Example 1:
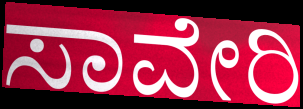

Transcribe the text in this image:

ಸಾವೇರಿ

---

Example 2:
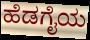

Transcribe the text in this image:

ಹೆಡಗೈಯ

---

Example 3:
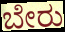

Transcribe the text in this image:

ಬೇರು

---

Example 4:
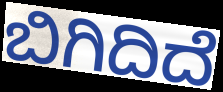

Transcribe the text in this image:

ಬಿಗಿದಿದೆ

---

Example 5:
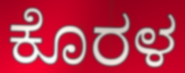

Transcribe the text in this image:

ಕೊರಳ